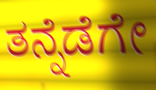
ತನ್ನೆಡೆಗೇ